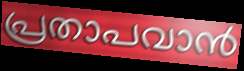
പ്രതാപവാൻ